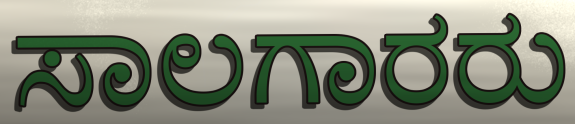
ಸಾಲಗಾರರು